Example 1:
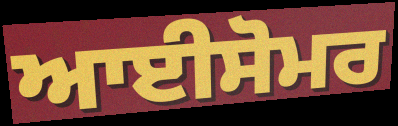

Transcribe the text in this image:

ਆਈਸੋਮਰ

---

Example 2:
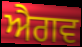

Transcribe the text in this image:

ਐਗਵ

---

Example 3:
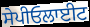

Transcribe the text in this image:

ਸੇਪੀਓਲਾਈਟ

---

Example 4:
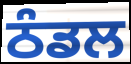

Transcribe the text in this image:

ਠੰਡਲ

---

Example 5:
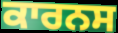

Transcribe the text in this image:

ਕਾਰਨਸ